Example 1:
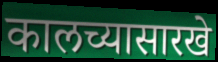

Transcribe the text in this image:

कालच्यासारखे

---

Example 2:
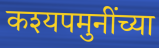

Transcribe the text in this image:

कश्यपमुनींच्या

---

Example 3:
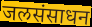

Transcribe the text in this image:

जलसंसाधन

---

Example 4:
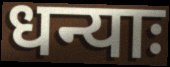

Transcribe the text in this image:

धन्याः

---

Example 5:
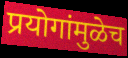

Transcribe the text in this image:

प्रयोगांमुळेच